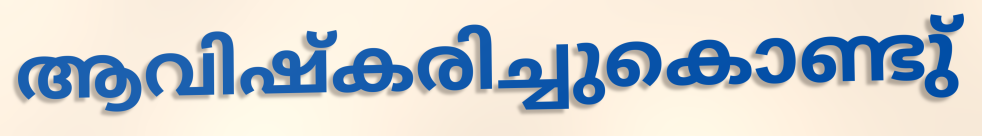
ആവിഷ്കരിച്ചുകൊണ്ടു്